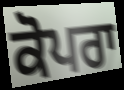
ਕੋਪਰਾ